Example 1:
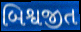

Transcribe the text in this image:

બિશ્વજીત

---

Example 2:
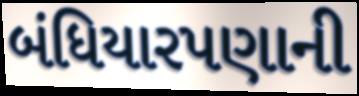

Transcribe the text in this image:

બંધિયારપણાની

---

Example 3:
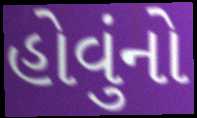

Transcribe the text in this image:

હોવુંનો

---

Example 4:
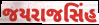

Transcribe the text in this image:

જયરાજસિંહ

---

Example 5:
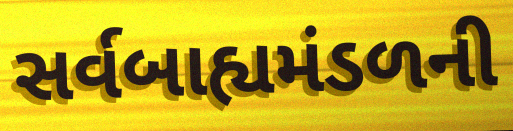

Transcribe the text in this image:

સર્વબાહ્યમંડળની